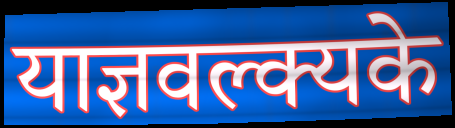
याज्ञवल्क्यके